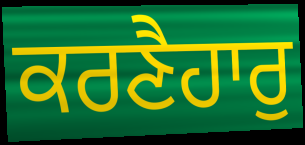
ਕਰਣੈਹਾਰੁ